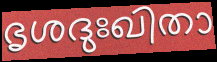
ഭൃശദുഃഖിതാ